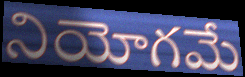
నియోగమే